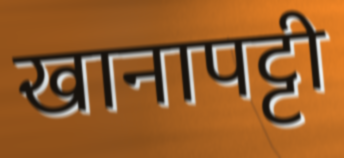
खानापट्टी